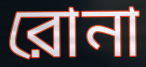
রোনা